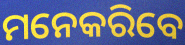
ମନେକରିବେ